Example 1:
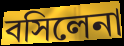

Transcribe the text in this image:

বসিলেনা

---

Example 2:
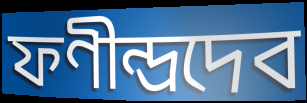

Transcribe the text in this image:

ফণীন্দ্রদেব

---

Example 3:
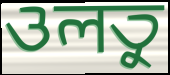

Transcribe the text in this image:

ওলতু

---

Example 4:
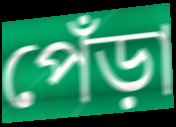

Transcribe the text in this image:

পেঁড়া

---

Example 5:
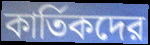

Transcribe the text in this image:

কার্তিকদের